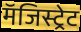
मॅजिस्ट्रेट